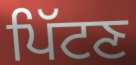
ਪਿੱਟਣ